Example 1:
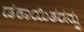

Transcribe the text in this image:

ಡಕಾಯಿತರನ್ನು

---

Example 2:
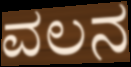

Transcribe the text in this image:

ವಲನ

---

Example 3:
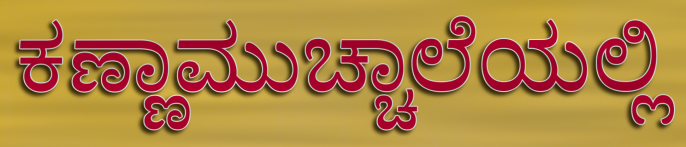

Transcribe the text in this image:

ಕಣ್ಣಾಮುಚ್ಚಾಲೆಯಲ್ಲಿ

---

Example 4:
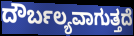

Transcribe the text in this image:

ದೌರ್ಬಲ್ಯವಾಗುತ್ತದೆ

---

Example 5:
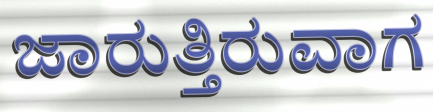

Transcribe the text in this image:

ಜಾರುತ್ತಿರುವಾಗ